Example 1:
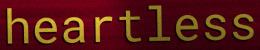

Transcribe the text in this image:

heartless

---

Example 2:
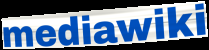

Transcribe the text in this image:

mediawiki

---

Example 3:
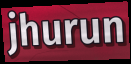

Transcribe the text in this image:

jhurun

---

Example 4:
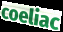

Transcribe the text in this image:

coeliac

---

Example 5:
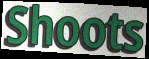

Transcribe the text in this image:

Shoots